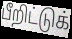
பீறிட்டுக்